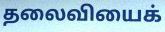
தலைவியைக்